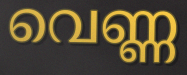
വെണ്ണ